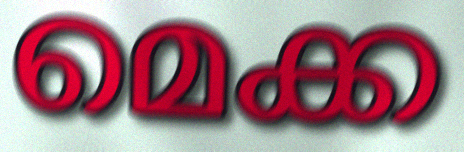
മെക്ക